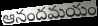
ఆనందమయం